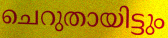
ചെറുതായിട്ടും